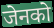
जेनको